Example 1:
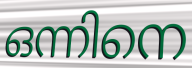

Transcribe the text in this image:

ഒന്നിനെ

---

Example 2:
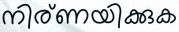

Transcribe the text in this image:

നിര്ണയിക്കുക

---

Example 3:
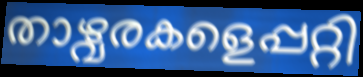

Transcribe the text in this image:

താഴ്വരകളെപ്പറ്റി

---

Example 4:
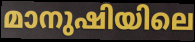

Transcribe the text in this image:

മാനുഷിയിലെ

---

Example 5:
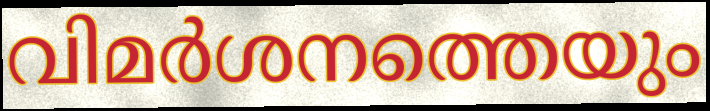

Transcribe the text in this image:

വിമർശനത്തെയും